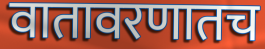
वातावरणातच